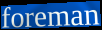
foreman